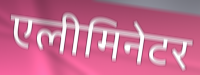
एलीमिनेटर